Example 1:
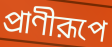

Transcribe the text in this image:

প্রাণীরূপে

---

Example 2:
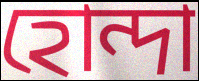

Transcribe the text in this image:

হোন্দা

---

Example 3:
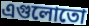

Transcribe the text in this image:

এগুলোতো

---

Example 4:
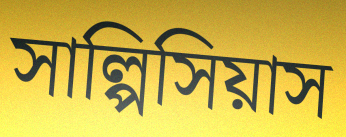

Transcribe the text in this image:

সাল্পিসিয়াস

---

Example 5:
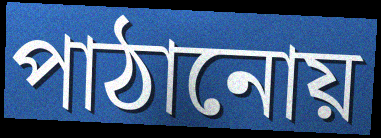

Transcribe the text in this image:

পাঠানোয়